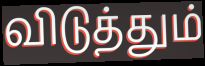
விடுத்தும்